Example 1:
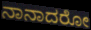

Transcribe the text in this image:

ನಾನಾದರೋ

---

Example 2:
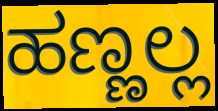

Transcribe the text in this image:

ಹಣ್ಣಲ್ಲ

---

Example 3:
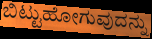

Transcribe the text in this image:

ಬಿಟ್ಟುಹೋಗುವುದನ್ನು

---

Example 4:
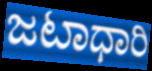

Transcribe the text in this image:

ಜಟಾಧಾರಿ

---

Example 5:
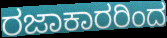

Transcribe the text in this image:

ರಜಾಕಾರರಿಂದ